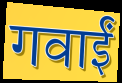
गवाईं